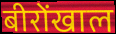
बीरोंखाल